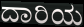
ದಾರಿಯ